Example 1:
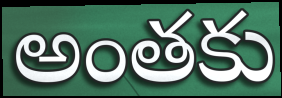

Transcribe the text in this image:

అంతకు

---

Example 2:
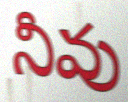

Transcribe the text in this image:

నీవు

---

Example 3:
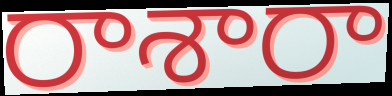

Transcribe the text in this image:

రాశారా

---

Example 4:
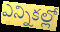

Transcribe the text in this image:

ఎన్నికల్లో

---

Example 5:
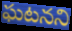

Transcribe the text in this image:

ఘటనని